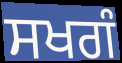
ਸਖਗੰ